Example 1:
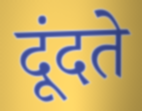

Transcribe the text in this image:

दूंदते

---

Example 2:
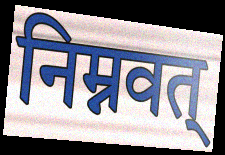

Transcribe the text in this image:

निम्नवत्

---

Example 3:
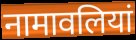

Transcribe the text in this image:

नामावलियां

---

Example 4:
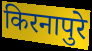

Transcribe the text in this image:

किरनापुरे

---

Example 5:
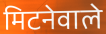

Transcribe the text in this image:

मिटनेवाले